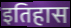
इतिहास